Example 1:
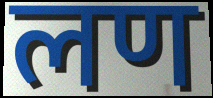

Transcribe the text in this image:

लण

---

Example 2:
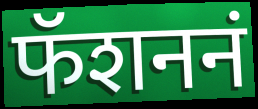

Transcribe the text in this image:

फॅशननं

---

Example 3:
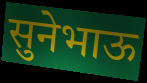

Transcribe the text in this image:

सुनेभाऊ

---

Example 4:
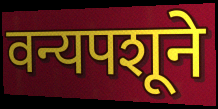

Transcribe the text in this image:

वन्यपशूने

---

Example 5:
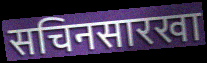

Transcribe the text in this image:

सचिनसारखा